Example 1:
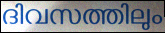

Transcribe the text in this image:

ദിവസത്തിലും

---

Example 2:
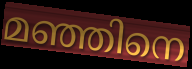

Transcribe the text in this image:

മഞ്ഞിനെ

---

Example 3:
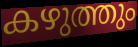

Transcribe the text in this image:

കഴുത്തും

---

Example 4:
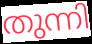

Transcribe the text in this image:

തുന്നി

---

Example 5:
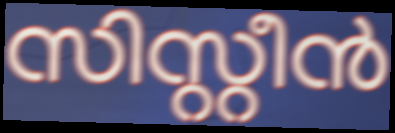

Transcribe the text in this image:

സിസ്റ്റീൻ